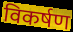
विकर्षण